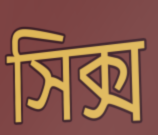
সিক্স